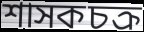
শাসকচক্র